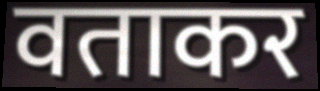
वताकर